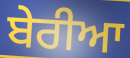
ਬੇਰੀਆ